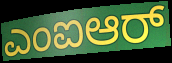
ಎಂಐಆರ್